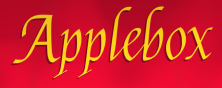
Applebox